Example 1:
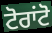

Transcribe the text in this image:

ਟੋਰਾਂਟੋ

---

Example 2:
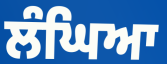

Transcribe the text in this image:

ਲੰਘਿਆ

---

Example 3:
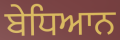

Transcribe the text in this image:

ਬੇਧਿਆਨ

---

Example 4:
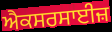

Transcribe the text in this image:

ਐਕਸਰਸਾਈਜ਼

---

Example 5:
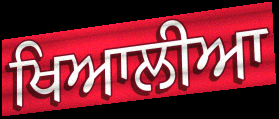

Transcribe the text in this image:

ਖਿਆਲੀਆ